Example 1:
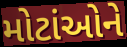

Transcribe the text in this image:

મોટાંઓને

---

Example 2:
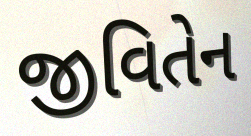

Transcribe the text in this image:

જીવિતેન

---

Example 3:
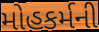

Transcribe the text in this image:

મોહકર્મની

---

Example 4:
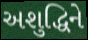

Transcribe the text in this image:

અશુદ્ધિને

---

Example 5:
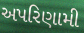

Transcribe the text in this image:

અપરિણામી